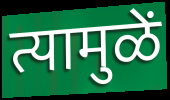
त्यामुळें